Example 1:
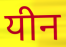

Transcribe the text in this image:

यीन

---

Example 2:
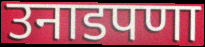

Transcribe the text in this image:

उनाडपणा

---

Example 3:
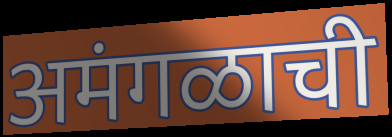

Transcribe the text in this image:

अमंगळाची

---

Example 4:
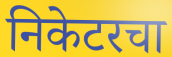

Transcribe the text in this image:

निकेटरचा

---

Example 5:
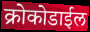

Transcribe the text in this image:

क्रोकोडाईल